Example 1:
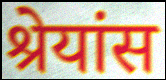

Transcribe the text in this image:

श्रेयांस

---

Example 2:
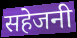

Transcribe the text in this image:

सहेजनी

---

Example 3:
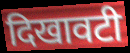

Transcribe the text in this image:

दिखावटी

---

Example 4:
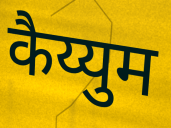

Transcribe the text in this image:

कैय्युम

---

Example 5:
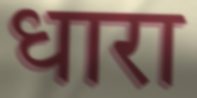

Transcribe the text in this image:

धारा